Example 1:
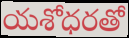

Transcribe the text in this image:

యశోధరతో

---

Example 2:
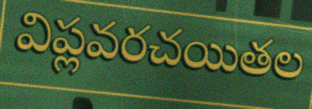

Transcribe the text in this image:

విప్లవరచయితల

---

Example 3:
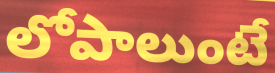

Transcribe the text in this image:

లోపాలుంటే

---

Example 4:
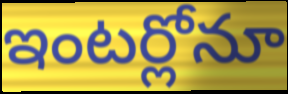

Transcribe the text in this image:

ఇంటర్లోనూ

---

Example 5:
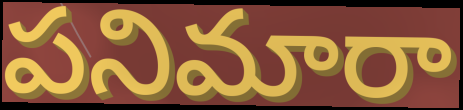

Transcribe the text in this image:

పనిమారా